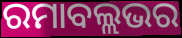
ରମାବଲ୍ଲଭର